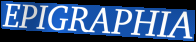
EPIGRAPHIA